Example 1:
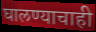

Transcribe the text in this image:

घालण्याचाही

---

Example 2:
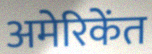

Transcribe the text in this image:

अमेरिकेंत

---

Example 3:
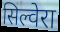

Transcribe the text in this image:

सिल्वेरा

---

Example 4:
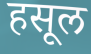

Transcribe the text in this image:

हसूल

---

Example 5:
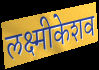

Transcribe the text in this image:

लक्ष्मीकेशव